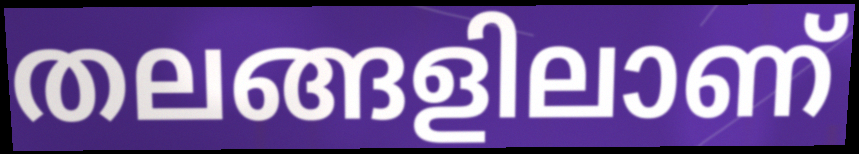
തലങ്ങളിലാണ്